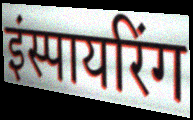
इंस्पायरिंग